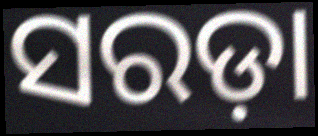
ସରଡ଼ା